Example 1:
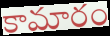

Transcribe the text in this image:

కామారం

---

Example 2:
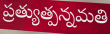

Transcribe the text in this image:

ప్రత్యుత్పన్నమతి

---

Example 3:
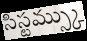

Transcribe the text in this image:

సిస్టమ్స్కు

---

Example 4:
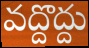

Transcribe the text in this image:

వద్దొద్దు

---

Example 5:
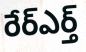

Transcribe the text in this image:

రేర్ఎర్త్